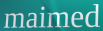
maimed